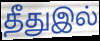
தீதுஇல்